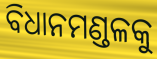
ବିଧାନମଣ୍ଡଳକୁ